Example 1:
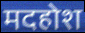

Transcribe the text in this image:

मदहोश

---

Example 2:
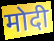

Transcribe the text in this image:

मोदी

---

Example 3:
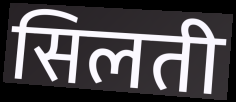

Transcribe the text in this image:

सिलती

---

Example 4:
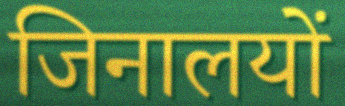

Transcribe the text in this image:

जिनालयों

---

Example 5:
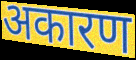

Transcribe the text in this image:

अकारण